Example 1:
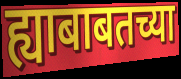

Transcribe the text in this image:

ह्याबाबतच्या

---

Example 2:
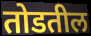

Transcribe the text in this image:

तोडतील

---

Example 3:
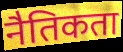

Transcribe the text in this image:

नैतिकता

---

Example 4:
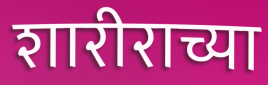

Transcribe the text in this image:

शारीराच्या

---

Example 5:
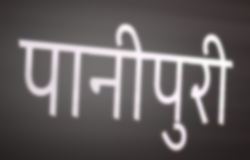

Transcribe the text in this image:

पानीपुरी